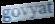
govyat